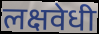
लक्षवेधी